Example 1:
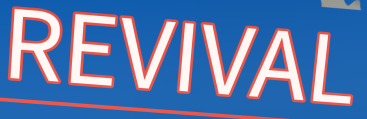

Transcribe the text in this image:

REVIVAL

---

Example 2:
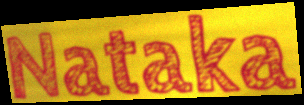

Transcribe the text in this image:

Nataka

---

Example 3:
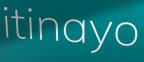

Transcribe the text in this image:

itinayo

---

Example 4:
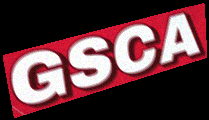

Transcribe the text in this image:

GSCA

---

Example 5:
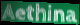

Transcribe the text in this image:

Aethina